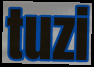
tuzi